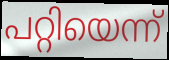
പറ്റിയെന്ന്